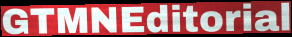
GTMNEditorial